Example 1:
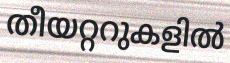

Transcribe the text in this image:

തീയറ്ററുകളിൽ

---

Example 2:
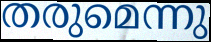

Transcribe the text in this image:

തരുമെന്നു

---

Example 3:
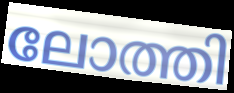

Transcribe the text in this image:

ലോത്തി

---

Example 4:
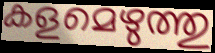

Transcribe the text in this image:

കളമെഴുത്തു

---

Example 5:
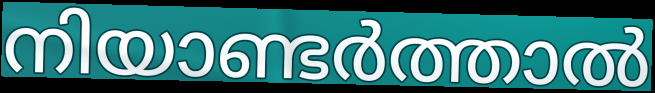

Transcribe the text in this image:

നിയാണ്ടർത്താൽ